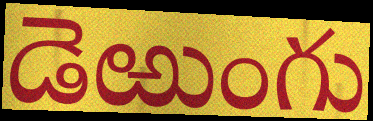
డెఱుంగు